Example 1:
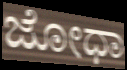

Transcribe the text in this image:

ಜೋಧಾ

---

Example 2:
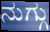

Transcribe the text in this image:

ನುಗ್ಗು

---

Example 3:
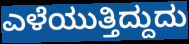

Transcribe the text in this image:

ಎಳೆಯುತ್ತಿದ್ದುದು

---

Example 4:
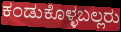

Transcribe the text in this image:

ಕಂಡುಕೊಳ್ಳಬಲ್ಲರು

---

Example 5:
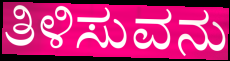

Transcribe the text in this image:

ತಿಳಿಸುವನು